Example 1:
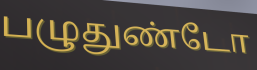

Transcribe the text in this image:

பழுதுண்டோ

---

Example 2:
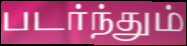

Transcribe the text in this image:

படர்ந்தும்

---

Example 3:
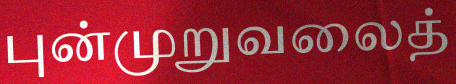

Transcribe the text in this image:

புன்முறுவலைத்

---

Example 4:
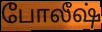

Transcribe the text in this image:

போலீஷ்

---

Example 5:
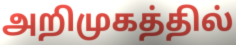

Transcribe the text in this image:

அறிமுகத்தில்